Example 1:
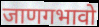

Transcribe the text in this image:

जाणगभावो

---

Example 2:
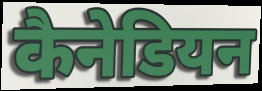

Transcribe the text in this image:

कैनेडियन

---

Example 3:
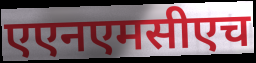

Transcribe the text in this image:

एएनएमसीएच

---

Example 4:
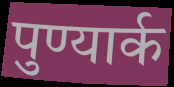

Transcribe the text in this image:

पुण्यार्क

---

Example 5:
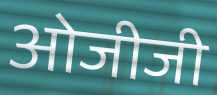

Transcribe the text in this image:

ओजीजी